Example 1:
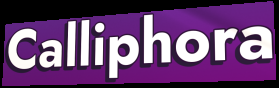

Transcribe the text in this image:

Calliphora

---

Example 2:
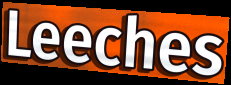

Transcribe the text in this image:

Leeches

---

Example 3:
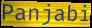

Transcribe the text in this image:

Panjabi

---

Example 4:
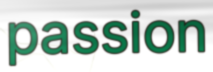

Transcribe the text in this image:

passion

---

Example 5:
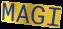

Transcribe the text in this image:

MAGI